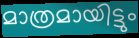
മാത്രമായിട്ടും